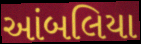
આંબલિયા